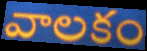
వాలకం